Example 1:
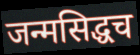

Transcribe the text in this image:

जन्मसिद्धच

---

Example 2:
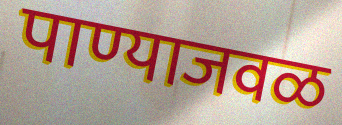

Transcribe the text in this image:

पाण्याजवळ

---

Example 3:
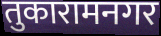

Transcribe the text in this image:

तुकारामनगर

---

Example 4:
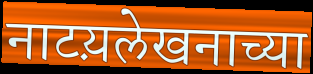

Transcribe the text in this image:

नाटय़लेखनाच्या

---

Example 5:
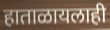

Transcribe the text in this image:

हाताळायलाही